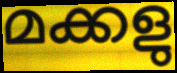
മക്കളു